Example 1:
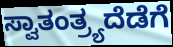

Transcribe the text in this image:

ಸ್ವಾತಂತ್ರ್ಯದೆಡೆಗೆ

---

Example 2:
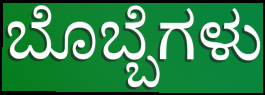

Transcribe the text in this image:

ಬೊಬ್ಬೆಗಳು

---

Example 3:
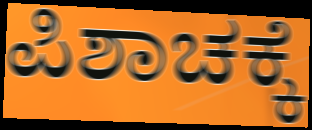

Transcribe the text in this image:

ಪಿಶಾಚಕ್ಕೆ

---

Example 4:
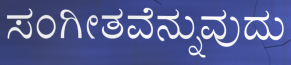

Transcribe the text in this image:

ಸಂಗೀತವೆನ್ನುವುದು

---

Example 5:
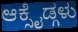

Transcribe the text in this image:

ಆಕ್ಸೈಡ್ಗಳು